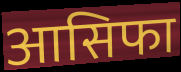
आसिफा